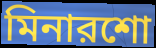
মিনারশো